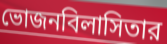
ভোজনবিলাসিতার